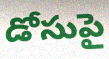
డోసుపై